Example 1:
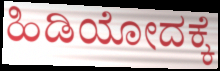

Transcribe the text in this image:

ಹಿಡಿಯೋದಕ್ಕೆ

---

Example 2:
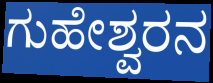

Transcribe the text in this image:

ಗುಹೇಶ್ವರನ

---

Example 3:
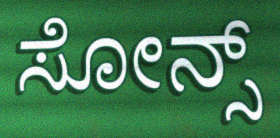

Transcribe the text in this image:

ಸೋನ್ಸ್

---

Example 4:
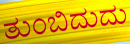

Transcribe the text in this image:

ತುಂಬಿದುದು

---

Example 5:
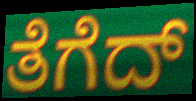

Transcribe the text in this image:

ತೆಗೆದ್